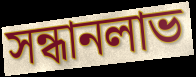
সন্ধানলাভ